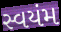
સ્વયંમ